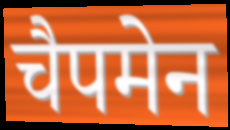
चैपमेन